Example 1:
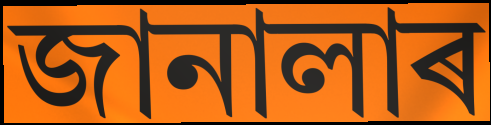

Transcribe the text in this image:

জানালাৰ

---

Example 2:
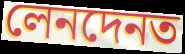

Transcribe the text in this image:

লেনদেনত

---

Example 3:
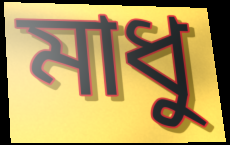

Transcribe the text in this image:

মাধু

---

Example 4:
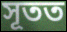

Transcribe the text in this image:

সূতত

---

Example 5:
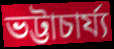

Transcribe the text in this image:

ভট্টাচাৰ্য্য